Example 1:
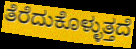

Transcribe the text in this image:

ತೆರೆದುಕೊಳ್ಳುತ್ತದೆ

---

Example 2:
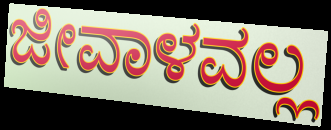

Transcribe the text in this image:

ಜೀವಾಳವಲ್ಲ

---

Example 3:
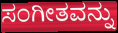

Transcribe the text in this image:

ಸಂಗೀತವನ್ನು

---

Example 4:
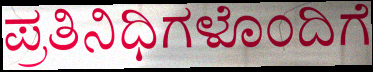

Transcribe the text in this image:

ಪ್ರತಿನಿಧಿಗಳೊಂದಿಗೆ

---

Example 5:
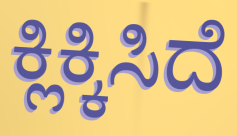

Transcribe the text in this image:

ಕ್ಲಿಕ್ಕಿಸಿದೆ